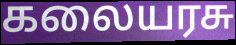
கலையரசு